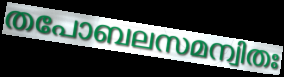
തപോബലസമന്വിതഃ